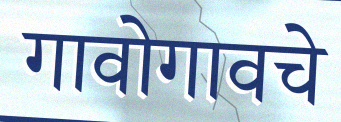
गावोगावचे